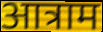
आत्राम